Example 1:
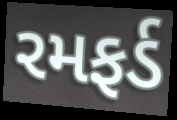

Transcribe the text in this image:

રમફર્ડ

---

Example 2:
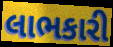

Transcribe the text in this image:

લાભકારી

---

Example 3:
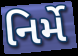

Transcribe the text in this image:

નિર્મે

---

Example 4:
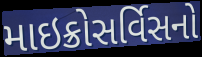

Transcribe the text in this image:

માઇક્રોસર્વિસનો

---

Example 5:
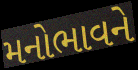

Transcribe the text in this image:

મનોભાવને